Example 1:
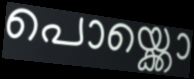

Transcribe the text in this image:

പൊയ്ക്കൊ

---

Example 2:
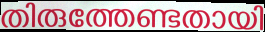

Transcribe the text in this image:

തിരുത്തേണ്ടതായി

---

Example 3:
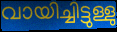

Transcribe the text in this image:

വായിച്ചിട്ടുള്ളു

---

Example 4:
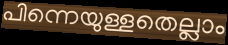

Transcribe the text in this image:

പിന്നെയുള്ളതെല്ലാം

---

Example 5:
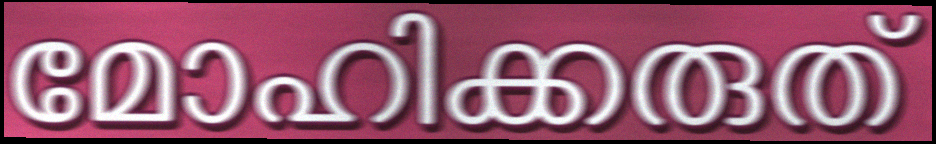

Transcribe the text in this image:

മോഹിക്കരുത്